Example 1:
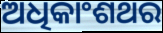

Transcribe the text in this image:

ଅଧିକାଂଶଥର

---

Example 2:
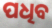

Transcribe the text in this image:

ପଧିବ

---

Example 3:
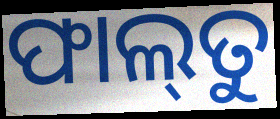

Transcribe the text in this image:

ଫାଲ୍‌ତୁ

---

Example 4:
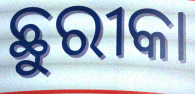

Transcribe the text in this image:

ଛୁରୀକା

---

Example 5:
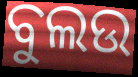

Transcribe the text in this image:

ବୁଲଉ